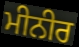
ਮੀਨੀਰ